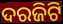
ଦରଜିଟି